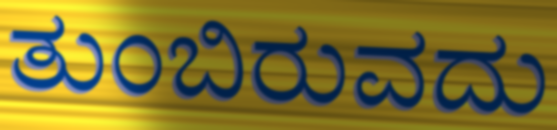
ತುಂಬಿರುವದು